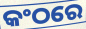
କଂଠରେ